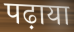
पढ़ाया